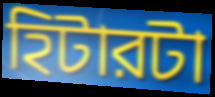
হিটারটা